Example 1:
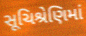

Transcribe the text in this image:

સૂચિશ્રેણિમાં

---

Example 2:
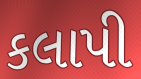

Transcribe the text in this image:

કલાપી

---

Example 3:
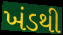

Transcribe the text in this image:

ખંડથી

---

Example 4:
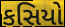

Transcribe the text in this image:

કસિયો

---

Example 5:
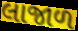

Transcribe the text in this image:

લાજાળ